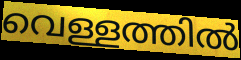
വെള്ളത്തിൽ